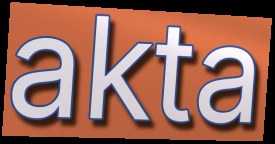
akta